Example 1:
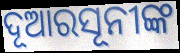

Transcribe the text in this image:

ଦୂଆରସୂନୀଙ୍କ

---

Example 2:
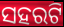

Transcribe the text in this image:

ସହରଟି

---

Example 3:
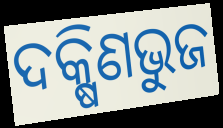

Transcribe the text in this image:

ଦକ୍ଷିଣଭୁଜ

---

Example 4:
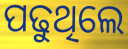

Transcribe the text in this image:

ପଢୁଥିଲେ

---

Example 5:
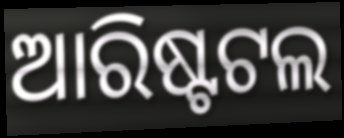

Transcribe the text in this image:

ଆରିଷ୍ଟଟଲ